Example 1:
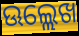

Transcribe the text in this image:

ଊଲ୍ଲେଖ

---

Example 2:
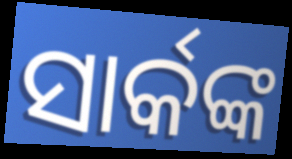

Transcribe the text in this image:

ସାର୍କଙ୍କ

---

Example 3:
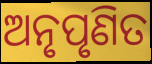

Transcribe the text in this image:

ଅନୃପୃଣିତ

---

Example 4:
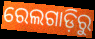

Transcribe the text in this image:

ରେଲଗାଡ଼ିରୁ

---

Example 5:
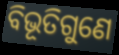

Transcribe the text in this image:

ବିଭୂତିଗୁଣେ